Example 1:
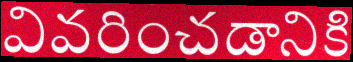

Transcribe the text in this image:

వివరించడానికి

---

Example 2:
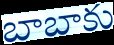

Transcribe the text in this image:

బాబాకు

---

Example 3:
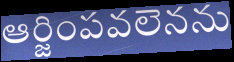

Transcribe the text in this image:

ఆర్జింపవలెనను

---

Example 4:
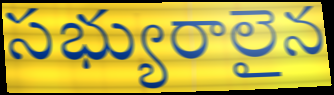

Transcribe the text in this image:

సభ్యురాలైన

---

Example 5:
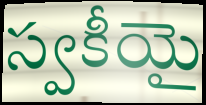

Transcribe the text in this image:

స్వకీయై